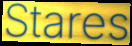
Stares